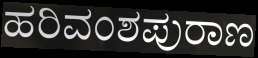
ಹರಿವಂಶಪುರಾಣ